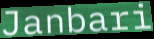
Janbari